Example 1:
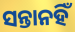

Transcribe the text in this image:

ସନ୍ତାନହିଁ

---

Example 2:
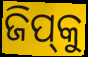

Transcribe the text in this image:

ଜିପ୍‍କୁ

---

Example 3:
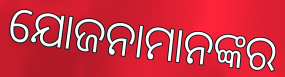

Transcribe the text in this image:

ଯୋଜନାମାନଙ୍କର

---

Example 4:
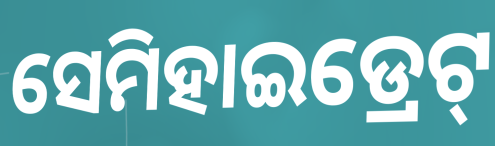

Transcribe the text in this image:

ସେମିହାଇଡ୍ରେଟ୍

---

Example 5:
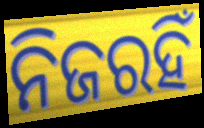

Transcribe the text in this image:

ନିଜରହିଁ